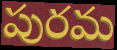
పురమ